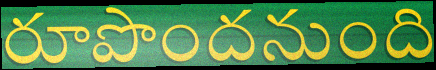
రూపొందనుంది